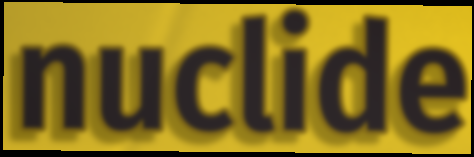
nuclide